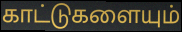
காட்டுகளையும்